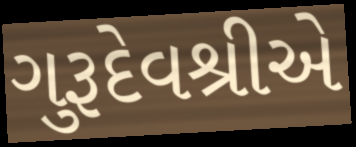
ગુરૂદેવશ્રીએ